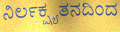
ನಿರ್ಲಕ್ಷ್ಯತನದಿಂದ